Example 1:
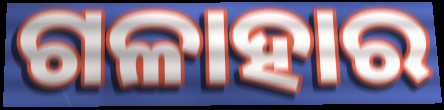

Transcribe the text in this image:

ଗଳାହାର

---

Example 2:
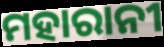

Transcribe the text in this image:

ମହାରାନୀ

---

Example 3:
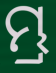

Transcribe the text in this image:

ମ୍ଭ୍ର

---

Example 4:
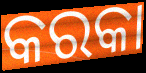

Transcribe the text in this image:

କରକା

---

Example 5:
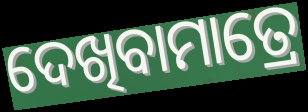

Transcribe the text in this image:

ଦେଖିବାମାତ୍ରେ